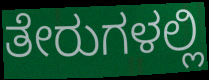
ತೇರುಗಳಲ್ಲಿ